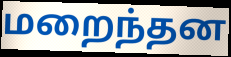
மறைந்தன